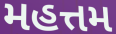
મહત્તમ